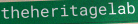
theheritagelab